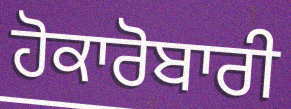
ਹੋਕਾਰੋਬਾਰੀ